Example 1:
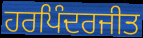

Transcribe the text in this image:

ਹਰਪਿੰਦਰਜੀਤ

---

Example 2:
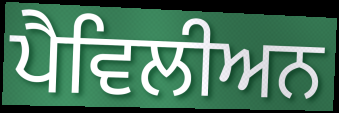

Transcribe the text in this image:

ਪੈਵਿਲੀਅਨ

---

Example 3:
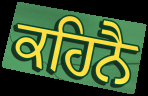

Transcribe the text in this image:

ਕਹਿਨੈ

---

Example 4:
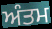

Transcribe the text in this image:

ਅੰਤਮ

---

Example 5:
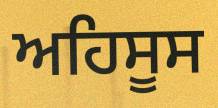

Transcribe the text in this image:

ਅਹਿਸੂਸ